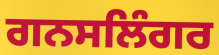
ਗਨਸਲਿੰਗਰ